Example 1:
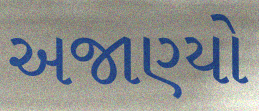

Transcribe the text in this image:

અજાણ્યો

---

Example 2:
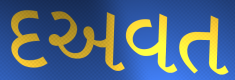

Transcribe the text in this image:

દઅવત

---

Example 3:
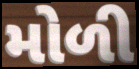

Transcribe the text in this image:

મોળી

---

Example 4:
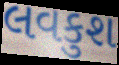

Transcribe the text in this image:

લવકુશ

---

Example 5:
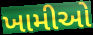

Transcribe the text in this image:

ખામીઓ